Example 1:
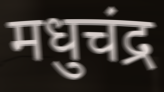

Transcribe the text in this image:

मधुचंद्र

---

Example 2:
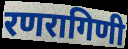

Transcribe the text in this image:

रणरागिणी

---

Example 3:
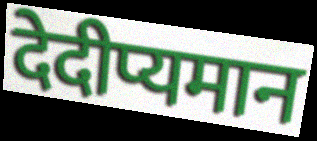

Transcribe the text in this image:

देदीप्यमान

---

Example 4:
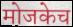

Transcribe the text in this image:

मोजकेच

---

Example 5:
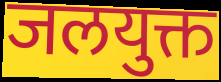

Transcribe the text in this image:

जलयुक्त